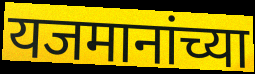
यजमानांच्या